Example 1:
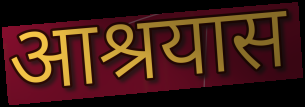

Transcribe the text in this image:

आश्रयास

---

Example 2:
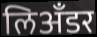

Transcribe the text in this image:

लिअँडर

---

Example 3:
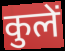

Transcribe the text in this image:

कुलें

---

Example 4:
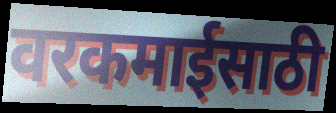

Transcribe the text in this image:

वरकमाईसाठी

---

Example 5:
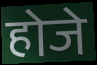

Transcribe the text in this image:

होजे